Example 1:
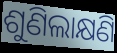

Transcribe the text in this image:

ଶୁଣିଲାକ୍ଷଣି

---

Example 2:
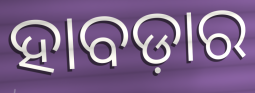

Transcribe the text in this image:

ହାବଡ଼ାର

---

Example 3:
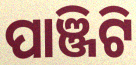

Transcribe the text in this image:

ପାଞ୍ଜିଟି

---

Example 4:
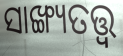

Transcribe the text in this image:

ସାଙ୍ଖ୍ୟତତ୍ତ୍ଵ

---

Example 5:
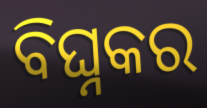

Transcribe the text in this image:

ବିଘ୍ନକର